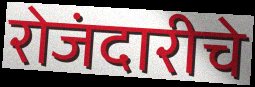
रोजंदारीचे